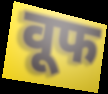
वूफ